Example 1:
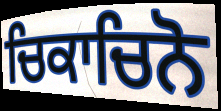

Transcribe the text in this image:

ਚਿਕਾਚਿਨੋ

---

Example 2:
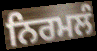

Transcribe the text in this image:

ਨਿਰਮਲੰ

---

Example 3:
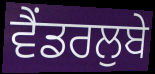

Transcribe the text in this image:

ਵੈਂਡਰਲੁਬੇ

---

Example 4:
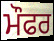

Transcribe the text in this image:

ਮੌਫਰ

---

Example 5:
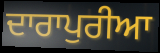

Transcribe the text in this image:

ਦਾਰਾਪੁਰੀਆ